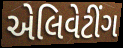
એલિવેટીંગ